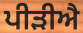
ਪੀੜੀਐ